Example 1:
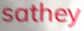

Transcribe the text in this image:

sathey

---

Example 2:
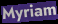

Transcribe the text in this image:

Myriam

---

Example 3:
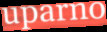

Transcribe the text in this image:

uparno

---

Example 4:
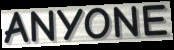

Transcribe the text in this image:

ANYONE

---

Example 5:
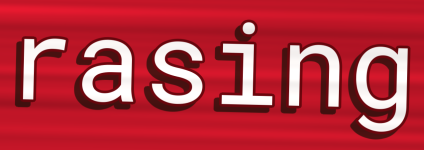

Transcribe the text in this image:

rasing